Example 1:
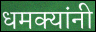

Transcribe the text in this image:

धमक्यांनी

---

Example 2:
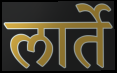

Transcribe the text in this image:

लार्ते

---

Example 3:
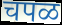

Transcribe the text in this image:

चपळ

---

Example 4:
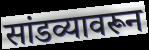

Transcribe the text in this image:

सांडव्यावरून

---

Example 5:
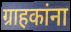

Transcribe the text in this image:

ग्राहकांना